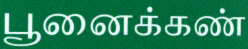
பூனைக்கண்